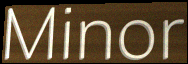
Minor